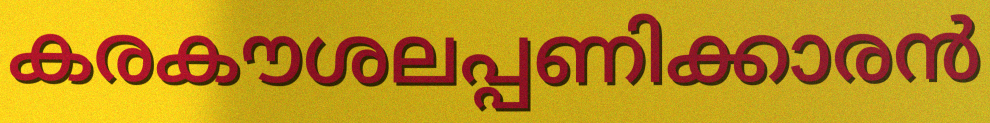
കരകൗശലപ്പണിക്കാരൻ